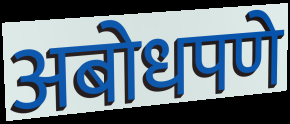
अबोधपणे